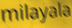
milayala